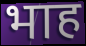
भाह